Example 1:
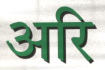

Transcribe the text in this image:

अरि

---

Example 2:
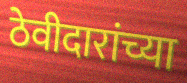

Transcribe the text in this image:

ठेवीदारांच्या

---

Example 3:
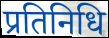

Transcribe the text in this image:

प्रतिनिधि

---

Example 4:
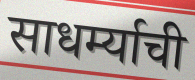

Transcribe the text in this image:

साधर्म्याची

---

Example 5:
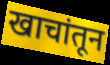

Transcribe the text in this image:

खाचांतून